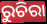
ରୁଚିରା